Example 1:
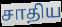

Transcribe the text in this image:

சாதிய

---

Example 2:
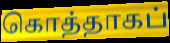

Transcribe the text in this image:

கொத்தாகப்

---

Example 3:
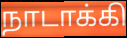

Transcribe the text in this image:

நாடாக்கி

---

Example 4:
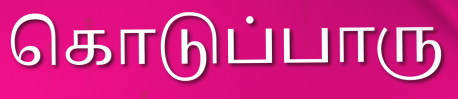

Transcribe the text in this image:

கொடுப்பாரு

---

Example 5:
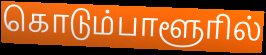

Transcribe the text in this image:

கொடும்பாளூரில்